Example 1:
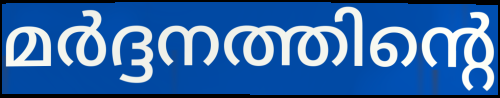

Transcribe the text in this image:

മർദ്ദനത്തിന്റെ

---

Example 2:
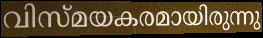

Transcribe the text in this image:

വിസ്മയകരമായിരുന്നു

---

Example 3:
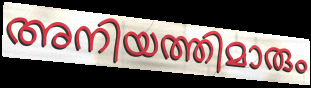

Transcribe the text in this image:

അനിയത്തിമാരും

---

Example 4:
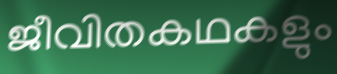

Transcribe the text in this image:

ജീവിതകഥകളും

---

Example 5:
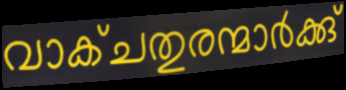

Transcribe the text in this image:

വാക്ചതുരന്മാർക്കു്